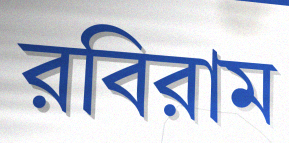
রবিরাম